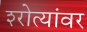
श्रोत्यांवर